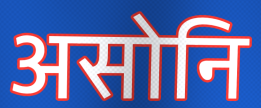
असोनि